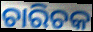
ଚାରିଚକ